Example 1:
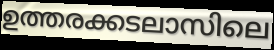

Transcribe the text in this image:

ഉത്തരക്കടലാസിലെ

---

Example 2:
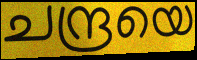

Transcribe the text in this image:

ചന്ദ്രയെ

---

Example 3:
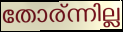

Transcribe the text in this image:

തോര്ന്നില്ല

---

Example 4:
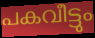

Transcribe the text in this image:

പകവീട്ടും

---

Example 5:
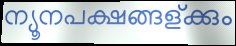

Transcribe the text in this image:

ന്യൂനപക്ഷങ്ങള്ക്കും